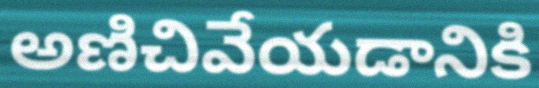
అణిచివేయడానికి